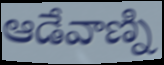
ఆడేవాణ్ని